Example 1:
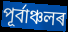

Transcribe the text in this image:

পূৰ্বাঞ্চলৰ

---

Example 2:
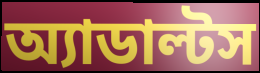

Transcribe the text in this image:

অ্যাডাল্টস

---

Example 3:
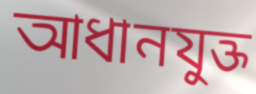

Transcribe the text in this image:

আধানযুক্ত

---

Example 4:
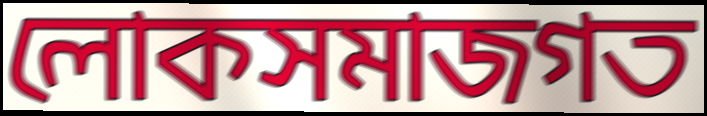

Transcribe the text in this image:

লোকসমাজগত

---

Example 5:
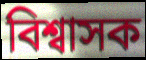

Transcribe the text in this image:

বিশ্বাসক